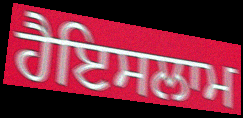
ਹੈਇਸਲਾਮ